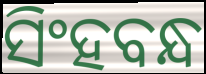
ସିଂହବନ୍ଧ